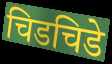
चिडचिडे